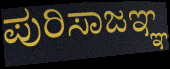
ಪುರಿಸಾಜಞ್ಞ